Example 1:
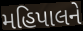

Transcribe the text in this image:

મહિપાલને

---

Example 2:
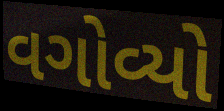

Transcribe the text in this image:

વગોવ્યો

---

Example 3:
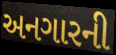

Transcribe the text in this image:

અનગારની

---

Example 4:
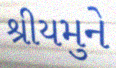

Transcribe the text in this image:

શ્રીયમુને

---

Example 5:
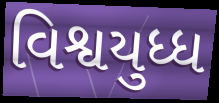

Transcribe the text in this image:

વિશ્વયુધ્ધ